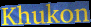
Khukon